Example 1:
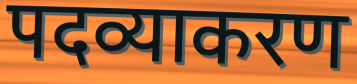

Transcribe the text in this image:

पदव्याकरण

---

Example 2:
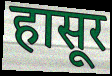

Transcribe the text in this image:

हासूर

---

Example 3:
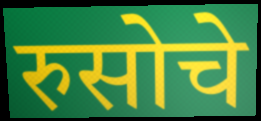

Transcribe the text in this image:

रुसोचे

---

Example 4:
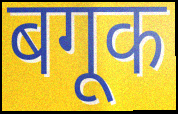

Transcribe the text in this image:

बगूक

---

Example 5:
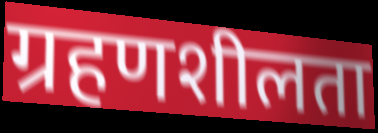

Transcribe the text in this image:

ग्रहणशीलता